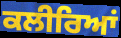
ਕਲੀਰਿਆਂ